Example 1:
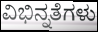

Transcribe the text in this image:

ವಿಭಿನ್ನತೆಗಳು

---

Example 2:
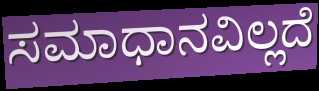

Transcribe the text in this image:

ಸಮಾಧಾನವಿಲ್ಲದೆ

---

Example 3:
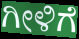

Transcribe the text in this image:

ಗೀಳಿಗೆ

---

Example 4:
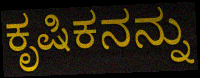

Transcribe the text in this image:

ಕೃಷಿಕನನ್ನು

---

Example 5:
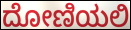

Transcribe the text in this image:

ದೋಣಿಯಲಿ